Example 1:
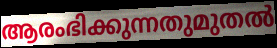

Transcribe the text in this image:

ആരംഭിക്കുന്നതുമുതൽ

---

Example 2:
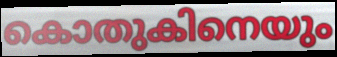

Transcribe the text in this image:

കൊതുകിനെയും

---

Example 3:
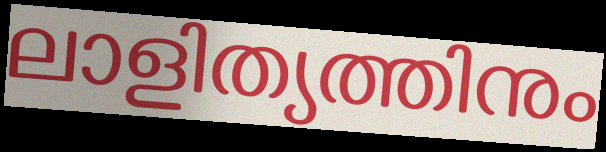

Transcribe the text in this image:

ലാളിത്യത്തിനും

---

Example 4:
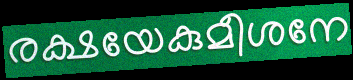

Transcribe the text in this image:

രക്ഷയേകുമീശനേ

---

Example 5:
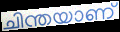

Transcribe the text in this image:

ചിന്തയാണ്